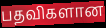
பதவிகளான